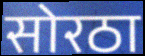
सोरठा